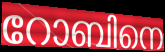
റോബിനെ